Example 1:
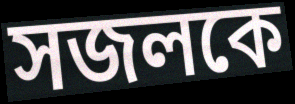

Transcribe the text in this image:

সজলকে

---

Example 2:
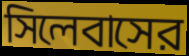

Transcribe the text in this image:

সিলেবাসের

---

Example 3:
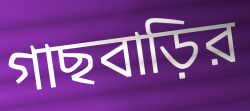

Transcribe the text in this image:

গাছবাড়ির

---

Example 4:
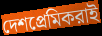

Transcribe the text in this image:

দেশপ্রেমিকরাই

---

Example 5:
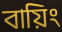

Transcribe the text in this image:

বায়িং